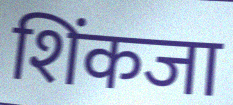
शिंकजा